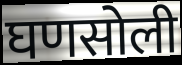
घणसोली